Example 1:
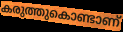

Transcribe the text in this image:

കരുത്തുകൊണ്ടാണ്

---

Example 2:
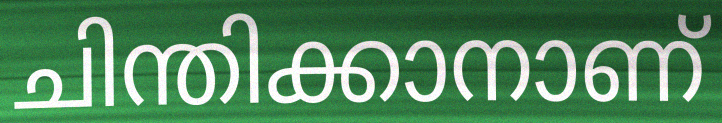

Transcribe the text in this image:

ചിന്തിക്കാനാണ്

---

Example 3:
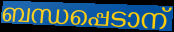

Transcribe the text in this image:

ബന്ധപ്പെടാന്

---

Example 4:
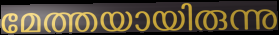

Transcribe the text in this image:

മേത്തയായിരുന്നു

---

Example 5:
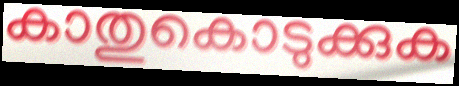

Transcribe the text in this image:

കാതുകൊടുക്കുക